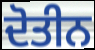
ਦੋਤੀਨ